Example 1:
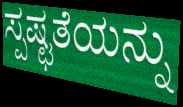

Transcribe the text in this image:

ಸ್ಪಷ್ಟತೆಯನ್ನು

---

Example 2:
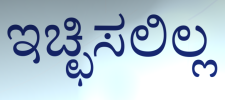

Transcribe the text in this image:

ಇಚ್ಛಿಸಲಿಲ್ಲ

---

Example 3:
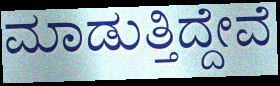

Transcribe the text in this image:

ಮಾಡುತ್ತಿದ್ದೇವೆ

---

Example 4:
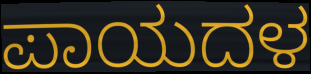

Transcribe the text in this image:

ಪಾಯದಳ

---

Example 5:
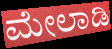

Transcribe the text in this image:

ಮೇಲಾಡಿ